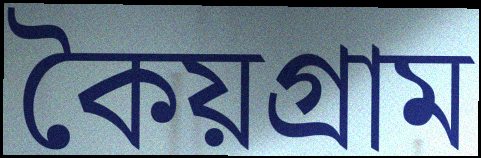
কৈয়গ্রাম